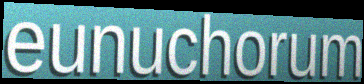
eunuchorum